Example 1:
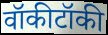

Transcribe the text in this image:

वॉकीटॉकी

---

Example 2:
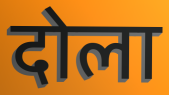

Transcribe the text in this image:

दोला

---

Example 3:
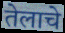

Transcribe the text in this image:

तेलाचे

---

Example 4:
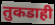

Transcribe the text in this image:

तुकडाही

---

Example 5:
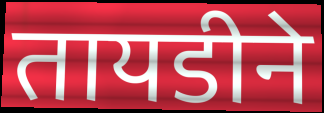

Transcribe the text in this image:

तायडीने